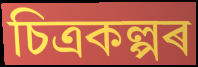
চিত্ৰকল্পৰ